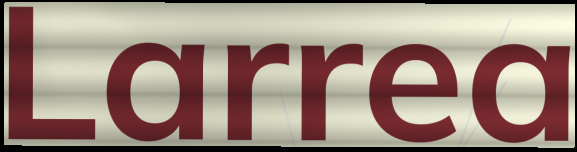
Larrea